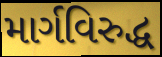
માર્ગવિરુદ્ધ